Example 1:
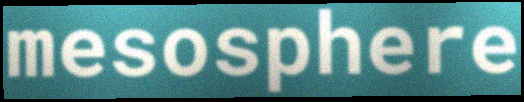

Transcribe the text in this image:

mesosphere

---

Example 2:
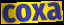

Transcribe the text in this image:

coxa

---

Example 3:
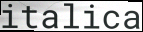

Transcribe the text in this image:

italica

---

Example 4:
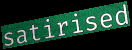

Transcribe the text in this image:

satirised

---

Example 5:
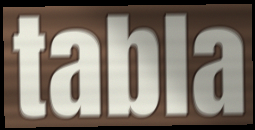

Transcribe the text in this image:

tabla